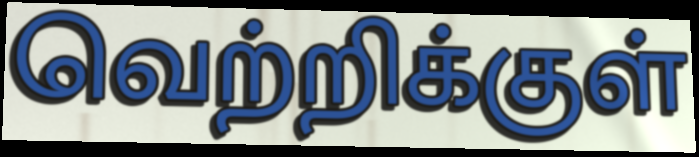
வெற்றிக்குள்